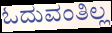
ಓದುವಂತಿಲ್ಲ